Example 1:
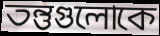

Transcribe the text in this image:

তন্তুগুলোকে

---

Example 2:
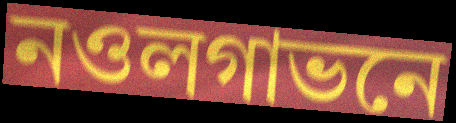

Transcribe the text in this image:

নওলগাভনে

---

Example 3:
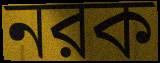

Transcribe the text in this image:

নরক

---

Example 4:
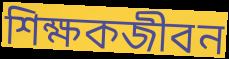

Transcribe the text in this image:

শিক্ষকজীবন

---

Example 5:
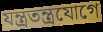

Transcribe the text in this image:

যন্ত্রতন্ত্রযোগে